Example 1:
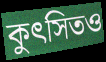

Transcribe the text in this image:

কুৎসিতও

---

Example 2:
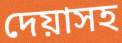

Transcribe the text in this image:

দেয়াসহ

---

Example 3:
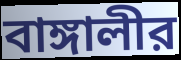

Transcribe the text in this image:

বাঙ্গালীর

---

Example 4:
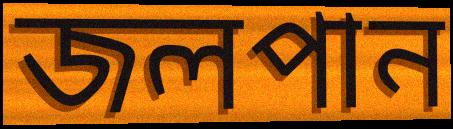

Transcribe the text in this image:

জলপান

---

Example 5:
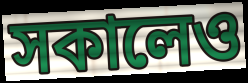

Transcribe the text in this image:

সকালেও